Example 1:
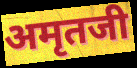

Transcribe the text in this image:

अमृतजी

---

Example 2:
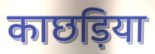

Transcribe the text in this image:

काछड़िया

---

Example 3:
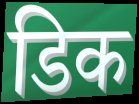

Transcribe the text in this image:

डिक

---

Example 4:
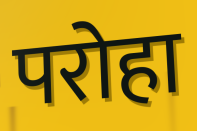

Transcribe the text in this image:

परोहा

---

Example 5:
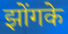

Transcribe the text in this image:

झोंगके